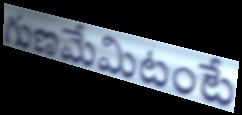
గుణమేమిటంటే